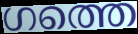
ഗത്തെ